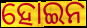
ହୋଇନ